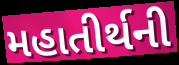
મહાતીર્થની